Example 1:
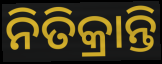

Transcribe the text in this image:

ନିତିକ୍ରାନ୍ତି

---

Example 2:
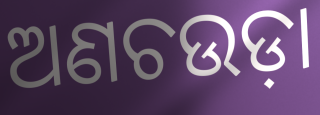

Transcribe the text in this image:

ଅଣଚଉଡ଼ା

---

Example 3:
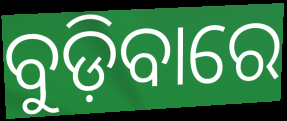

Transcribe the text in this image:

ବୁଡ଼ିବାରେ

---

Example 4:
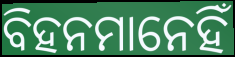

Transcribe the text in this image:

ବିହନମାନେହିଁ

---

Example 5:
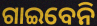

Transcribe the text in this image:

ଗାଇବେନି